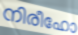
നിരീഹോ